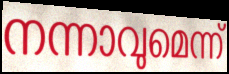
നന്നാവുമെന്ന്